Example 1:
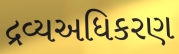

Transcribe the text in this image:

દ્રવ્યઅધિકરણ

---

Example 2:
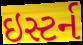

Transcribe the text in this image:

ઇસ્ટર્ન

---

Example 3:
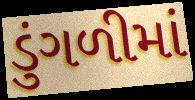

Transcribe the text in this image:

ડુંગળીમાં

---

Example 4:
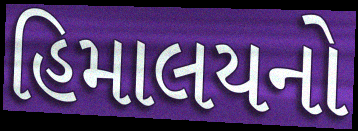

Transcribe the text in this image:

હિમાલયનો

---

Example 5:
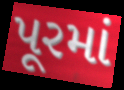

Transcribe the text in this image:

પૂરમાં